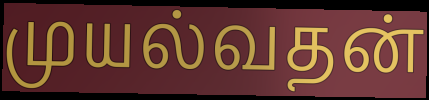
முயல்வதன்